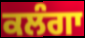
ਕਲੰਗਾ